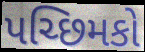
પચ્છિમકો